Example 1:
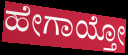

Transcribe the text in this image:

ಹೇಗಾಯ್ತೋ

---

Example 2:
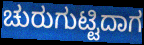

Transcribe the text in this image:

ಚುರುಗುಟ್ಟಿದಾಗ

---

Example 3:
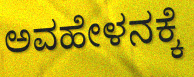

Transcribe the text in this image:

ಅವಹೇಳನಕ್ಕೆ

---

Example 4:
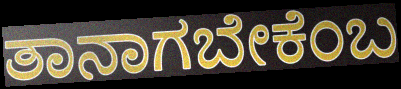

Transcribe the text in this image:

ತಾನಾಗಬೇಕೆಂಬ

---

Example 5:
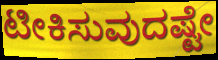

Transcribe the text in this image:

ಟೀಕಿಸುವುದಷ್ಟೇ